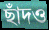
ছাঁদও